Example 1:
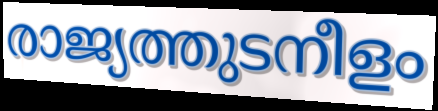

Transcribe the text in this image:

രാജ്യത്തുടനീളം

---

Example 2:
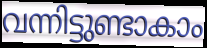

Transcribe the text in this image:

വന്നിട്ടുണ്ടാകാം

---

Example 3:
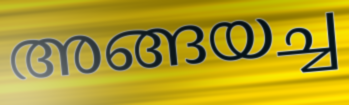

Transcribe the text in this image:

അങ്ങയച്ച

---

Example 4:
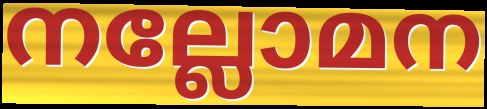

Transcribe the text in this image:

നല്ലോമന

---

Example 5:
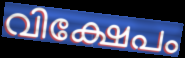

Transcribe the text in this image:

വിക്ഷേപം